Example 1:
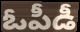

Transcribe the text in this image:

ఓపీడీ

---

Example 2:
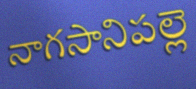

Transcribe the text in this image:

నాగసానిపల్లె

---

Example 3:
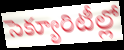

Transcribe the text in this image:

సెక్యూరిటీల్లో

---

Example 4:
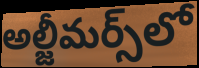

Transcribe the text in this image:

అల్జీమర్స్‌లో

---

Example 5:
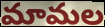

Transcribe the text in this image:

మామల